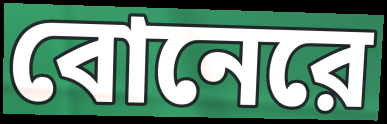
বোনেরে